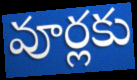
వూర్లకు